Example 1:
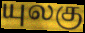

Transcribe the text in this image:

யுலகு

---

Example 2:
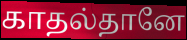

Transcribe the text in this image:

காதல்தானே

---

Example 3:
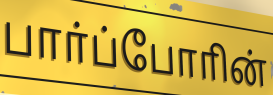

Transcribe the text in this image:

பார்ப்போரின்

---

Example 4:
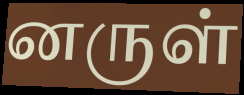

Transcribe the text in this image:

னருள்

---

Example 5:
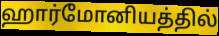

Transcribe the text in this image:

ஹார்மோனியத்தில்